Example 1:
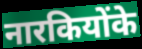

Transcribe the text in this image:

नारकियोंके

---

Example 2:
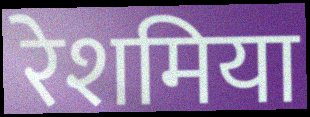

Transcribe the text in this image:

रेशमिया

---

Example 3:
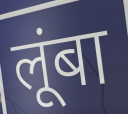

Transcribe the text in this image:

लूंबा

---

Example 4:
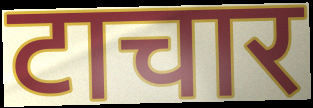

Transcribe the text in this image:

टाचार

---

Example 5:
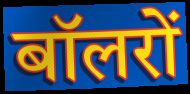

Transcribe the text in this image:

बॉलरों